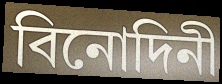
বিনোদিনী